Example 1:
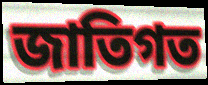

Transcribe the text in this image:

জাতিগত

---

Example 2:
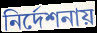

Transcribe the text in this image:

নির্দেশনায়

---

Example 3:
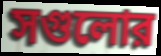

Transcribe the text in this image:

সগুলোর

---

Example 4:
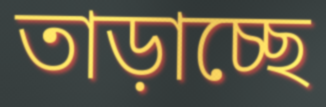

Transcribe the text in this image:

তাড়াচ্ছে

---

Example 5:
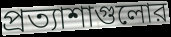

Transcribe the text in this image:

প্রত্যাশাগুলোর